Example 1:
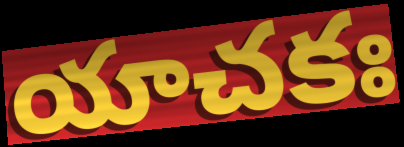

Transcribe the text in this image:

యాచకః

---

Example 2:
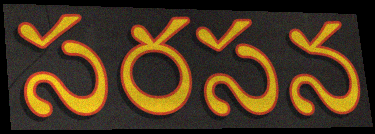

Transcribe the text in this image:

సరసన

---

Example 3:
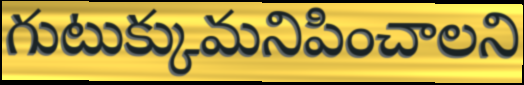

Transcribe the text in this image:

గుటుక్కుమనిపించాలని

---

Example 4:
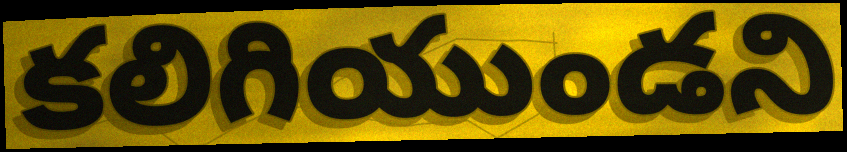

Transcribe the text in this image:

కలిగియుండని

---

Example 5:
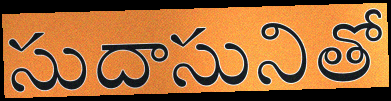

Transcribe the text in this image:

సుదాసునితో